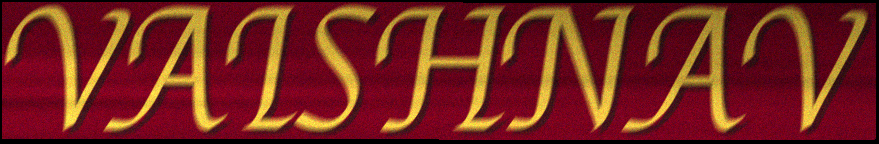
VAISHNAV